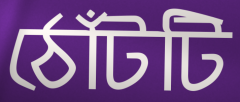
ঠোঁটটি